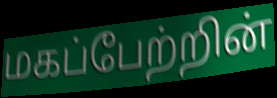
மகப்பேற்றின்